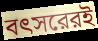
বৎসরেরই